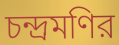
চন্দ্রমণির